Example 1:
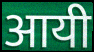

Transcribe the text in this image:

आयी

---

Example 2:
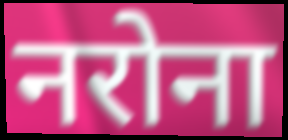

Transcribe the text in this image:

नरोना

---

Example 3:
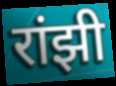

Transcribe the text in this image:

रांझी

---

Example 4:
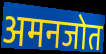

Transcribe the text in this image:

अमनजोत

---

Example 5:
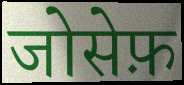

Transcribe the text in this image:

जोसेफ़